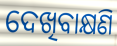
ଦେଖିବାକ୍ଷଣି